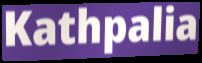
Kathpalia